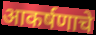
आकर्षणाचे